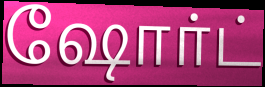
ஷோர்ட்